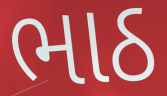
ભાઠ